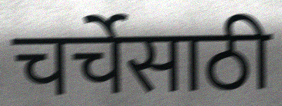
चर्चेसाठी